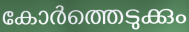
കോർത്തെടുക്കും